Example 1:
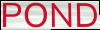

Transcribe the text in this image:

POND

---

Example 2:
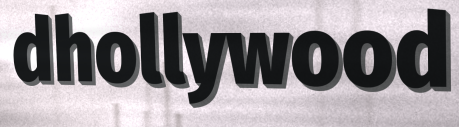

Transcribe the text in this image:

dhollywood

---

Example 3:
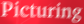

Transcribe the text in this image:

Picturing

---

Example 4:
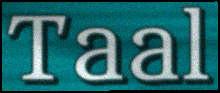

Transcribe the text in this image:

Taal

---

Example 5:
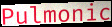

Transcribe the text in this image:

Pulmonic